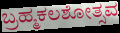
ಬ್ರಹ್ಮಕಲಶೋತ್ಸವ